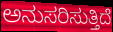
ಅನುಸರಿಸುತ್ತಿದೆ